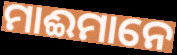
ମାଈମାନେ